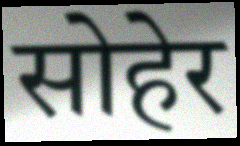
सोहेर